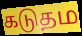
கடுதம